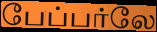
பேப்பர்லே